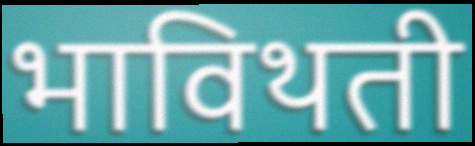
भाविथती